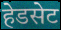
हेडसेट